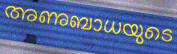
അണുബാധയുടെ